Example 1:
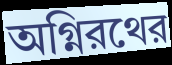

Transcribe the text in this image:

অগ্নিরথের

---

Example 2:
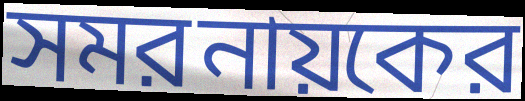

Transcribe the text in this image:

সমরনায়কের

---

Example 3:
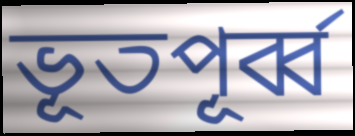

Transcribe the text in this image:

ভূতপূর্ব্ব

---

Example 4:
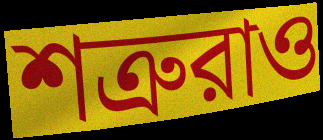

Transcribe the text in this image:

শত্রুরাও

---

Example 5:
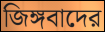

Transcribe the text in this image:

জিঙ্গবাদের